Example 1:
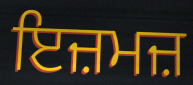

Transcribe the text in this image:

ਇਜ਼ਮਜ਼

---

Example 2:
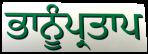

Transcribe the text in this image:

ਭਾਨੂੰਪ੍ਰਤਾਪ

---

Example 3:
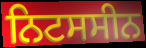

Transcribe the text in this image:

ਨਿਟਸਸੀਨ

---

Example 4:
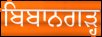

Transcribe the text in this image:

ਬਿਬਾਨਗੜ੍ਹ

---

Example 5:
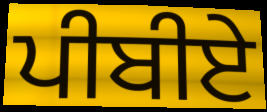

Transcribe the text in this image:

ਪੀਬੀਏ